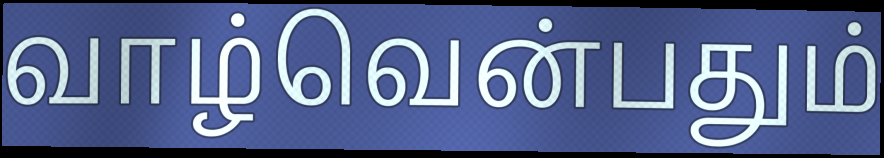
வாழ்வென்பதும்